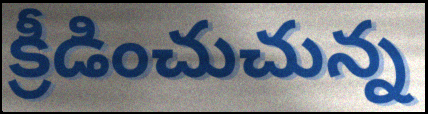
క్రీడించుచున్న